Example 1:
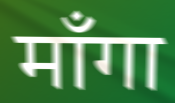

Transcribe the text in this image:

माँगा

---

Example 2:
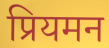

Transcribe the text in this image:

प्रियमन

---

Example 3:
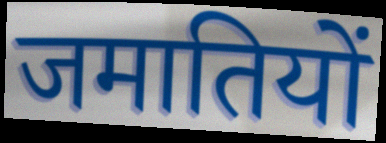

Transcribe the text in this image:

जमातियों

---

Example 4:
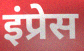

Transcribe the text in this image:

इंप्रेस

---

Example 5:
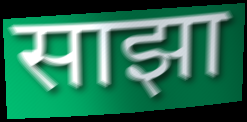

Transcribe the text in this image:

साझा